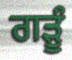
ਗੜੂੰ